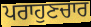
ਪਰਾਹੁਣਚਾਰ